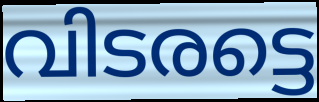
വിടരട്ടെ